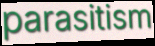
parasitism